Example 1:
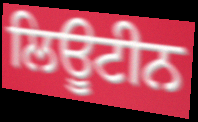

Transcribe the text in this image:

ਲਿਊਟੀਨ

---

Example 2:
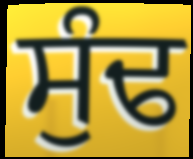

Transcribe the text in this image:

ਸੁੰਢ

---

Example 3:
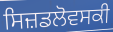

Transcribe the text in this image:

ਸਿਜ਼ਡਲੋਵਸਕੀ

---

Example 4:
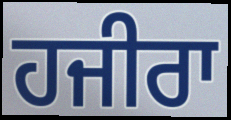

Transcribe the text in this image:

ਹਜੀਰਾ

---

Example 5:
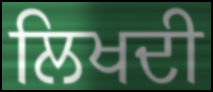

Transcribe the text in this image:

ਲਿਖਦੀ